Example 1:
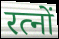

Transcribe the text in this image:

रत्नों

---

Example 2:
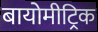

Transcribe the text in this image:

बायोमीट्रिक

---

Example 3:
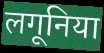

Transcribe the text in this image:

लगूनिया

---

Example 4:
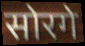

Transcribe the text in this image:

सोरगे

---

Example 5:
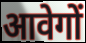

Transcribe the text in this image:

आवेगों